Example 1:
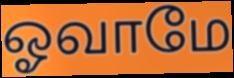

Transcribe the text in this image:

ஓவாமே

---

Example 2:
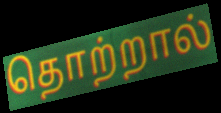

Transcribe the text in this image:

தொற்றால்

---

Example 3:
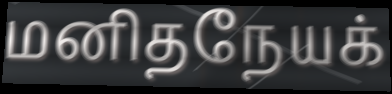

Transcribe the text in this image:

மனிதநேயக்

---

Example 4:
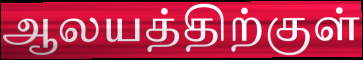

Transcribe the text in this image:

ஆலயத்திற்குள்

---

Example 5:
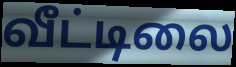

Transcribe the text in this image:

வீட்டிலை